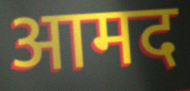
आमद